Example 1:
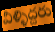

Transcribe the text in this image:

వీళ్ళిద్దరు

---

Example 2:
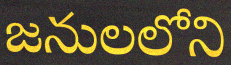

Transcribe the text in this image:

జనులలోని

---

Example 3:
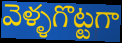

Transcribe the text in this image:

వెళ్ళగొట్టగా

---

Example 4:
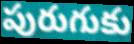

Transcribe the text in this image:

పురుగుకు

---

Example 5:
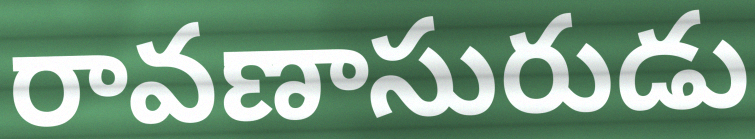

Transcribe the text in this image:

రావణాసురుడు